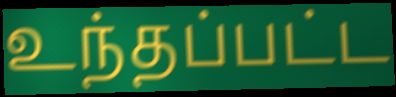
உந்தப்பட்ட